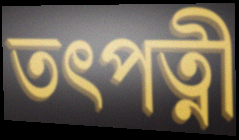
তৎপত্নী